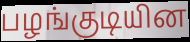
பழங்குடியின